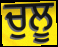
ਚੁਲੂ